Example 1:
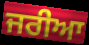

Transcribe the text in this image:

ਜਰੀਆ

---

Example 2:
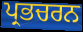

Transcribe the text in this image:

ਪ੍ਰਭਚਰਨ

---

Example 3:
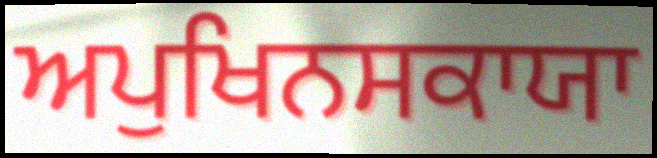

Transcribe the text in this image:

ਅਪੁਖਿਨਸਕਾਯਾ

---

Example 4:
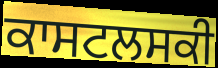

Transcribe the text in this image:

ਕਾਸਟਲਸਕੀ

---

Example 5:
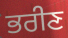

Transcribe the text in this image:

ਭਰੀਣ